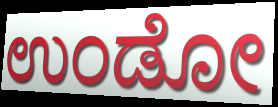
ಉಂಡೋ